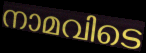
നാമവിടെ